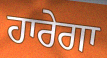
ਹਾਰੇਗਾ